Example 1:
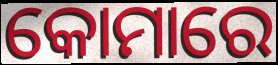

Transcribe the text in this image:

କୋମାରେ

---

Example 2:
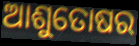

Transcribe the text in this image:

ଆଶୁତୋଷର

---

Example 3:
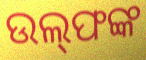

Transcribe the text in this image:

ଉଲ୍‌ଫଙ୍କ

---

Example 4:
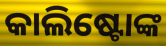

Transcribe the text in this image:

କାଲିଷ୍ଟୋଙ୍କ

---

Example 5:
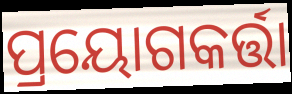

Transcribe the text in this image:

ପ୍ରୟୋଗକର୍ତ୍ତା